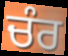
ਚੰਰ